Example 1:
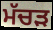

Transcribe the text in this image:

ਮੱਚੜ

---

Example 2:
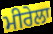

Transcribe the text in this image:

ਮੀਰੇਲਾ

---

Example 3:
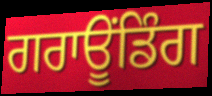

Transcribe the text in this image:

ਗਰਾਊਂਡਿੰਗ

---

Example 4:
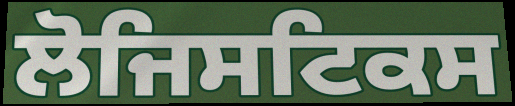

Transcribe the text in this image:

ਲੋਜਿਸਟਿਕਸ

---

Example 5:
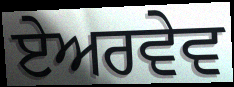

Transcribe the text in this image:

ਏਅਰਵੇਵ